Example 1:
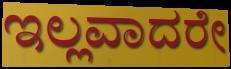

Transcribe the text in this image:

ಇಲ್ಲವಾದರೇ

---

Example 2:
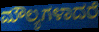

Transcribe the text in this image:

ಮೌಲ್ಯಗಳಾದರೆ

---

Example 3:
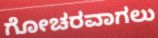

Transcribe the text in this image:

ಗೋಚರವಾಗಲು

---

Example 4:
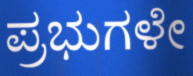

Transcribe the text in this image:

ಪ್ರಭುಗಳೇ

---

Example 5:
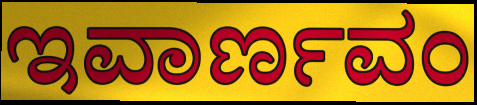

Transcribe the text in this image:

ಇವಾರ್ಣವಂ